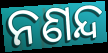
ନଣନ୍ଦ